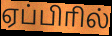
ஏப்பிரில்